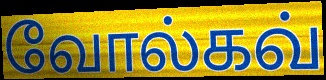
வோல்கவ்